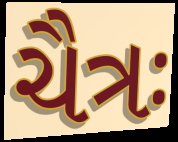
ચૈત્રઃ